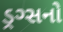
ડ્રગ્સનો